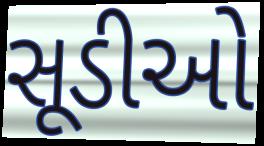
સૂડીઓ